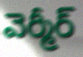
వెర్మీర్